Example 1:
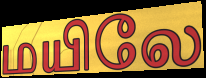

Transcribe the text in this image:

மயிலே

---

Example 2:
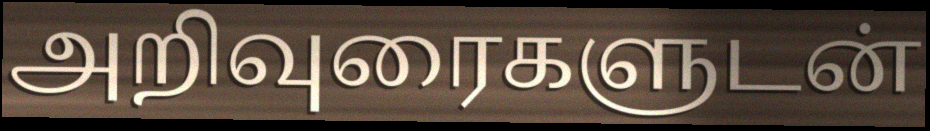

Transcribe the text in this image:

அறிவுரைகளுடன்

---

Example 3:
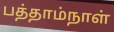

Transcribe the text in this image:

பத்தாம்நாள்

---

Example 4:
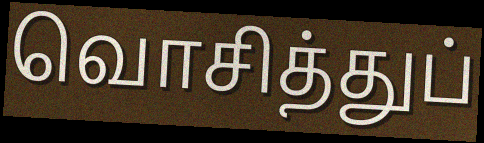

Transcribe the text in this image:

வொசித்துப்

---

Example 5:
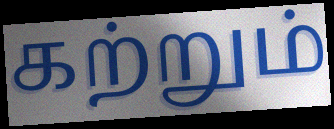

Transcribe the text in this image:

கற்றும்